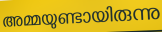
അമ്മയുണ്ടായിരുന്നു